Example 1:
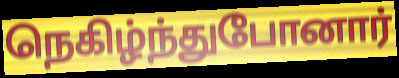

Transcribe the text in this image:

நெகிழ்ந்துபோனார்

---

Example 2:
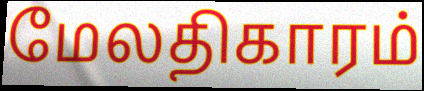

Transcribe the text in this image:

மேலதிகாரம்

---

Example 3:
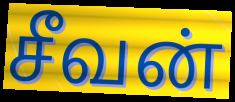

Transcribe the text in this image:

சீவன்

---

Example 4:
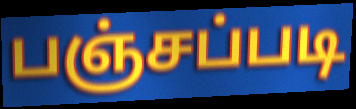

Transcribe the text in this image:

பஞ்சப்படி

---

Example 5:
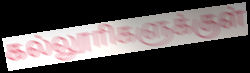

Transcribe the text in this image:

கல்லூரிகளுக்குள்